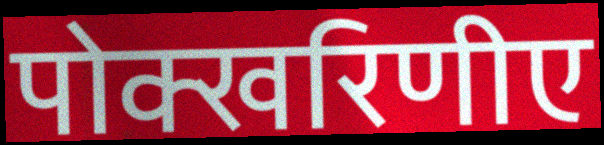
पोक्खरिणीए